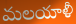
మలయాళీ